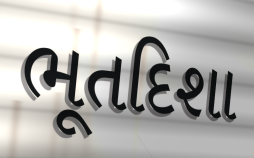
ભૂતદિશા